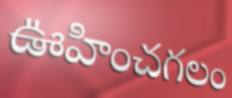
ఊహించగలం